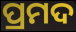
ପ୍ରମଦ